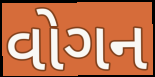
વોગન